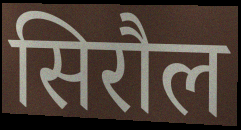
सिरौल